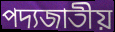
পদ্যজাতীয়